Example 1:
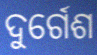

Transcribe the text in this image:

ଦୁର୍ଗେଶ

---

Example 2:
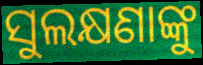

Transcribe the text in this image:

ସୁଲକ୍ଷଣାଙ୍କୁ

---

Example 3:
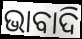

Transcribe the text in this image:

ଭାବାଦି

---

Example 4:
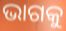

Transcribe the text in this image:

ଭାଗକୁ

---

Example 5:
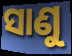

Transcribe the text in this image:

ସାଣୁ